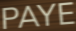
PAYE